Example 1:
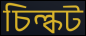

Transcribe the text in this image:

চিল্কট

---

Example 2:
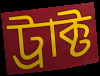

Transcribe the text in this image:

ট্রাক্ট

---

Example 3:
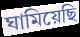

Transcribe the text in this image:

ঘামিয়েছি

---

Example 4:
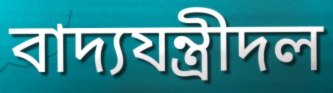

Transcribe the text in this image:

বাদ্যযন্ত্রীদল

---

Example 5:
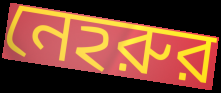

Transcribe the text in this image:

নেহরুর